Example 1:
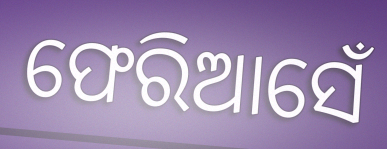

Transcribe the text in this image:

ଫେରିଆସେଁ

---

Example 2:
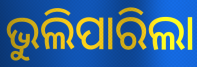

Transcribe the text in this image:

ଭୁଲିପାରିଲା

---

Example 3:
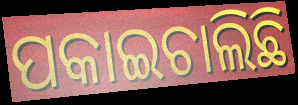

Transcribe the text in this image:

ପକାଇଚାଲିଛି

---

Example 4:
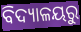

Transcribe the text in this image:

ବିଦ୍ୟାଳୟରୁ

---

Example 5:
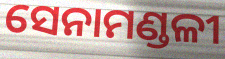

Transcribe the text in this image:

ସେନାମଣ୍ଡଳୀ